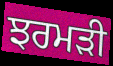
ਝਰਮੜੀ